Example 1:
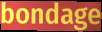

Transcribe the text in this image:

bondage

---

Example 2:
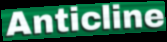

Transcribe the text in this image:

Anticline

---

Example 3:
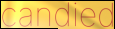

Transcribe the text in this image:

candied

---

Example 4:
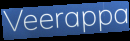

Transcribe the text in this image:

Veerappa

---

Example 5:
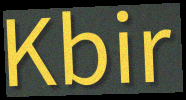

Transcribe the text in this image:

Kbir